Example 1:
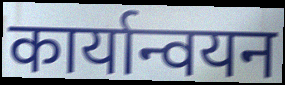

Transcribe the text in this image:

कार्यान्‍वयन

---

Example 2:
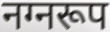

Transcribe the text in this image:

नग्नरूप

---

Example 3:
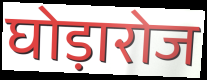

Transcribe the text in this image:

घोड़ारोज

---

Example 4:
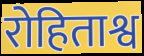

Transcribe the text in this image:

रोहिताश्व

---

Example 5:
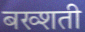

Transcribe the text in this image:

बख्शती